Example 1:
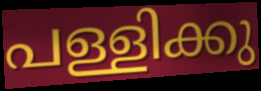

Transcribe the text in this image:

പള്ളിക്കു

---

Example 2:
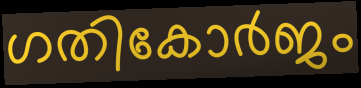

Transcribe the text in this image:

ഗതികോർജം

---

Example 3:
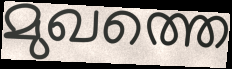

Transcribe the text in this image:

മുഖത്തെ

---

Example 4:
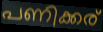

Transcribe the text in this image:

പണിക്കര്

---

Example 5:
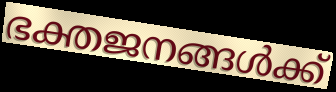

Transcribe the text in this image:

ഭക്തജനങ്ങൾക്ക്